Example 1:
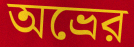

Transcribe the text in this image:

অভ্রের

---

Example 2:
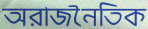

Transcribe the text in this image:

অরাজনৈতিক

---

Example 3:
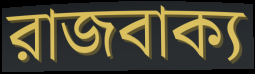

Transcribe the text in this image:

রাজবাক্য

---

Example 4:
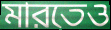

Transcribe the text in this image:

মারতেও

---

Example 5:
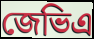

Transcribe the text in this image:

জেভিএ